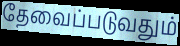
தேவைப்படுவதும்